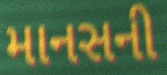
માનસની